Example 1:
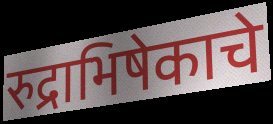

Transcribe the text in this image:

रुद्राभिषेकाचे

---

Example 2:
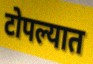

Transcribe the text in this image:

टोपल्यात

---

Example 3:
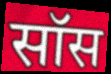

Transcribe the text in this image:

सॉस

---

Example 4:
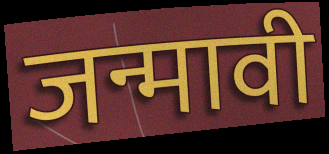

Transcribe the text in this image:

जन्मावी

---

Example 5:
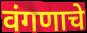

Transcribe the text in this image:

वंगणाचे